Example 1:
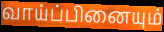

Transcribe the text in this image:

வாய்ப்பினையும்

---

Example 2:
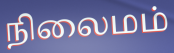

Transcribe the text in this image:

நிலைமம்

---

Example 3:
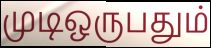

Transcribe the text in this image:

முடிஒருபதும்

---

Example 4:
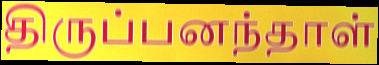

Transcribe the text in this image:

திருப்பனந்தாள்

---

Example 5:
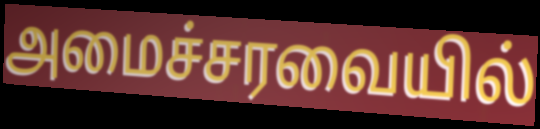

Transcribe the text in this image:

அமைச்சரவையில்